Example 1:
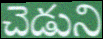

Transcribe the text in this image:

చెడుని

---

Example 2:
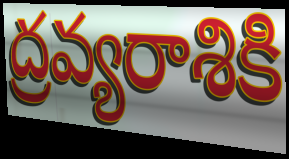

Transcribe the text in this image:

ద్రవ్యరాశికి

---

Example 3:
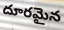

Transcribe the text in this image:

దూరమైన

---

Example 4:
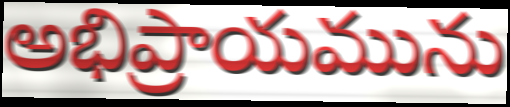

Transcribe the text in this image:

అభిప్రాయమును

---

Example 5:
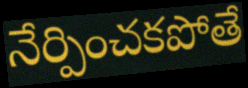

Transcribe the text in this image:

నేర్పించకపోతే